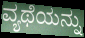
ವ್ಯಥೆಯನ್ನು